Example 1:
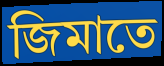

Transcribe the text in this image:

জিমাতে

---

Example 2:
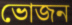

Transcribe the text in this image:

ভোজন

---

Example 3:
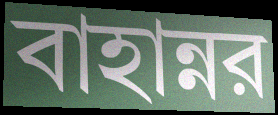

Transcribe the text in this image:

বাহান্নর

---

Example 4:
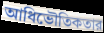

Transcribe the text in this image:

আধিভৌতিকতার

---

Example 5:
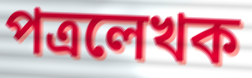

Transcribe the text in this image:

পত্রলেখক